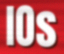
IOs